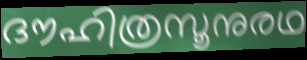
ദൗഹിത്രസൂനുരഥ